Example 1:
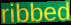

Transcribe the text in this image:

ribbed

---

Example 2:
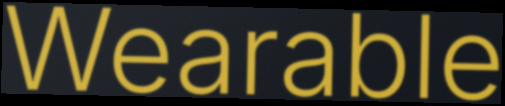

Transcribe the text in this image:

Wearable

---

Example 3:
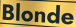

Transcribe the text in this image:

Blonde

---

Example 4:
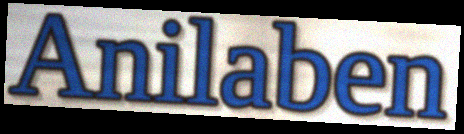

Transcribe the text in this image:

Anilaben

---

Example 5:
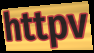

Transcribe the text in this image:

httpv